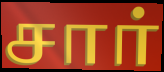
சார்